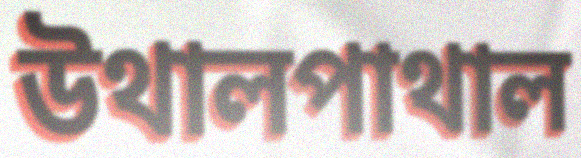
উথালপাথাল